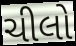
ચીલો